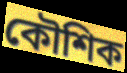
কৌশিক